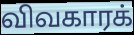
விவகாரக்